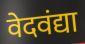
वेदवंद्या